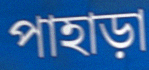
পাহাড়া